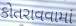
કોતરાવવામાં